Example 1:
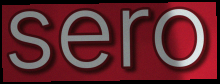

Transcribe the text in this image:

sero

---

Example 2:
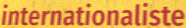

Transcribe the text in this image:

internationaliste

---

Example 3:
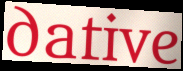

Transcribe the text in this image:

dative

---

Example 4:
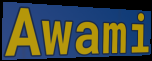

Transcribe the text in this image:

Awami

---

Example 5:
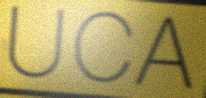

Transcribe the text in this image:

UCA